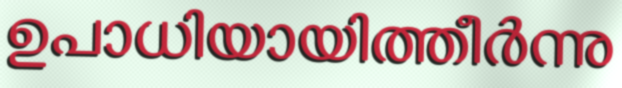
ഉപാധിയായിത്തീർന്നു